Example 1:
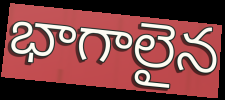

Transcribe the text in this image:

భాగాలైన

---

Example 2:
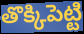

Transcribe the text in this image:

తొక్కిపెట్టి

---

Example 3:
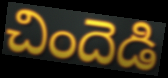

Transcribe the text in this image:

చిందెడి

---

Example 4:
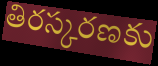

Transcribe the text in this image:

తిరస్కరణకు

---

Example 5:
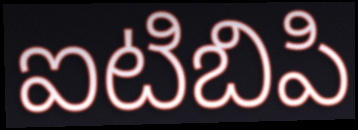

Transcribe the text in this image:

ఐటిబిపి